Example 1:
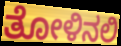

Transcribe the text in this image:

ತೋಳಿನಲಿ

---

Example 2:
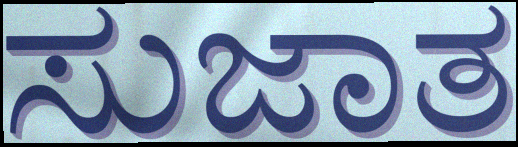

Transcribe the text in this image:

ಸುಜಾತ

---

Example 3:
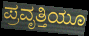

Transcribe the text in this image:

ಪ್ರವೃತ್ತಿಯೂ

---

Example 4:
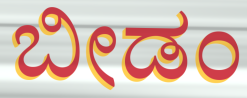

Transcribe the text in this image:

ಬೀಡಂ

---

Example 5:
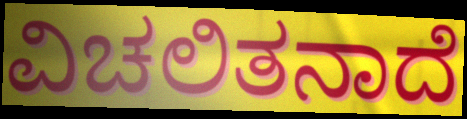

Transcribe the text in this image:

ವಿಚಲಿತನಾದೆ